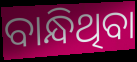
ବାନ୍ଧିଥିବା